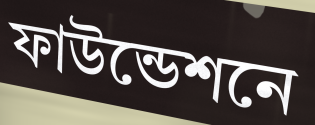
ফাউন্ডেশনে